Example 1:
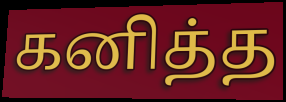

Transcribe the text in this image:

கனித்த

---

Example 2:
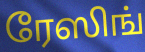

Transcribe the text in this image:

ரேஸிங்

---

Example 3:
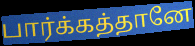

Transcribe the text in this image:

பார்க்கத்தானே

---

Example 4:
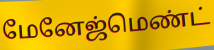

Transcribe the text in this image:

மேனேஜ்மெண்ட்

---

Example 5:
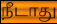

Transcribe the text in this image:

நீடாது